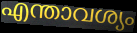
എന്താവശ്യം